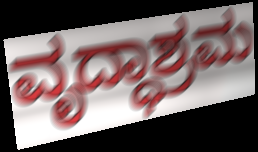
ವೃದ್ಧಾಶ್ರಮ